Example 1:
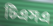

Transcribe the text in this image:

টিএসএ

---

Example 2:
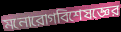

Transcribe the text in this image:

মনোরোগবিশেষজ্ঞের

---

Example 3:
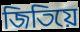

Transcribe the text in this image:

জিতিয়ে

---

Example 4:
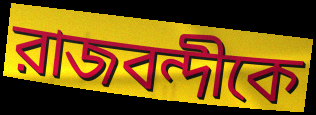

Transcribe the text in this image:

রাজবন্দীকে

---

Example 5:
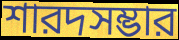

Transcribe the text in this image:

শারদসম্ভার